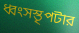
ধ্বংসস্তৃপটার